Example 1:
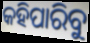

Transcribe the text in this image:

କହିପାରିବୁ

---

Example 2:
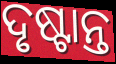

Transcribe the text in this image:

ଦୃଷ୍ଟାନ୍ତ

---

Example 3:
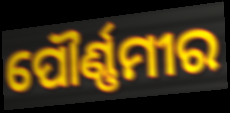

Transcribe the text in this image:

ପୌର୍ଣ୍ଣମୀର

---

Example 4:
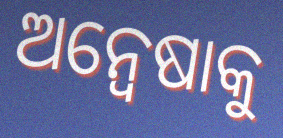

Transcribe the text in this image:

ଅନ୍ୱେଷାକୁ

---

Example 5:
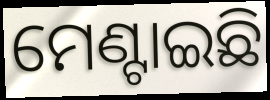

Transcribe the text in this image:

ମେଣ୍ଟାଇଛି